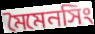
মৈমেনসিং